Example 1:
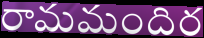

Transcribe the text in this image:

రామమందిర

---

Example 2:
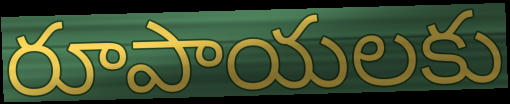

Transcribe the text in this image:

రూపాయలకు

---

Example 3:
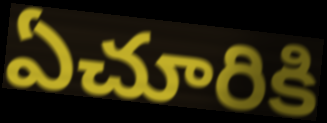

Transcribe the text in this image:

ఏచూరికి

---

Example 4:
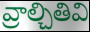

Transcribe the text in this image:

వ్రాల్చితివి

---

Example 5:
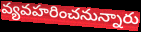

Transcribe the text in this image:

వ్యవహరించనున్నారు